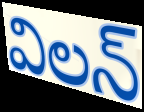
విలన్